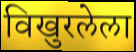
विखुरलेला